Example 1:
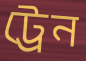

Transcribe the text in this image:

ট্রেন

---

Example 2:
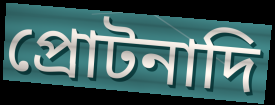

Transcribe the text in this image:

প্রোটনাদি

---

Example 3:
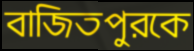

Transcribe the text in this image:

বাজিতপুরকে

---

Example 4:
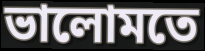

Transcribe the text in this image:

ভালোমতে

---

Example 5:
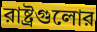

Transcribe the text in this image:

রাষ্ট্রগুলোর